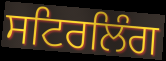
ਸਟਿਰਲਿੰਗ